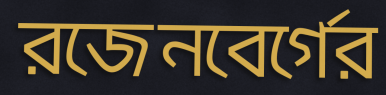
রজেনবের্গের